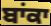
ਬਾਂਕਾ